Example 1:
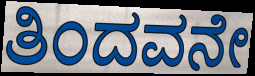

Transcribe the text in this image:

ತಿಂದವನೇ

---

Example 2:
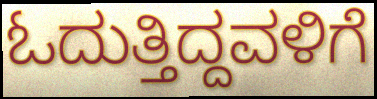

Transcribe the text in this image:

ಓದುತ್ತಿದ್ದವಳಿಗೆ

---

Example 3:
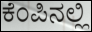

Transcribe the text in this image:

ಕೆಂಪಿನಲ್ಲಿ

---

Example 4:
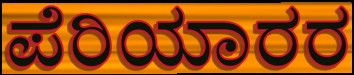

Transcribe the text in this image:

ಪೆರಿಯಾರರ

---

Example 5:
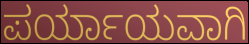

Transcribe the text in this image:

ಪರ್ಯಾಯವಾಗಿ